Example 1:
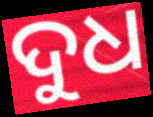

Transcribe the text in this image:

ଦୁଧ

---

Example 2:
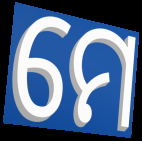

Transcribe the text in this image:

ମେ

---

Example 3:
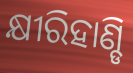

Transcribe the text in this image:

କ୍ଷୀରିହାଣ୍ଡି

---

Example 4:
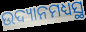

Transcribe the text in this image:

ଉଦ୍ୟାନମଧ୍ୟସ୍ଥ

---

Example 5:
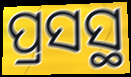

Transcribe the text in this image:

ପ୍ରସସ୍ଥ